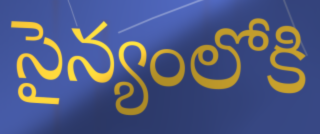
సైన్యంలోకి